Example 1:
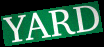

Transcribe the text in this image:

YARD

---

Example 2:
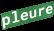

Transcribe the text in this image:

pleure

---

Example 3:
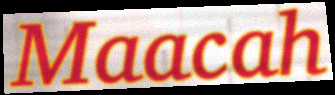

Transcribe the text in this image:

Maacah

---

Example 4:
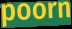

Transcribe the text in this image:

poorn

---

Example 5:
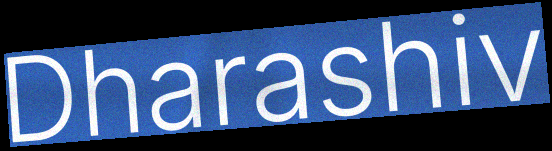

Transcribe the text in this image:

Dharashiv